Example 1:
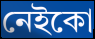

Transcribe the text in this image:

নেইকো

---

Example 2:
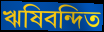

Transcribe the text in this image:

ঋষিবন্দিত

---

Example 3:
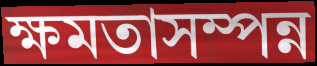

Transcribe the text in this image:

ক্ষমতাসম্পন্ন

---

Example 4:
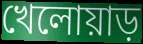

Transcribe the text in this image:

খেলোয়াড়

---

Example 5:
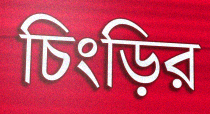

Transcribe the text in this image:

চিংড়ির